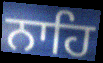
ਨਾਹਿ